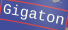
Gigaton